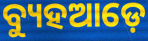
ବ୍ୟୁହଆଡ଼େ